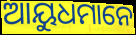
ଆୟୁଧମାନେ